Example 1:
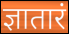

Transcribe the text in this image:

ज्ञातारं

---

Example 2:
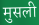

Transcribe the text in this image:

मुसली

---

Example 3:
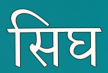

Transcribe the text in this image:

सिघ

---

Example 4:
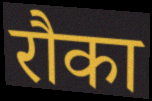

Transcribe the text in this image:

रौका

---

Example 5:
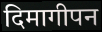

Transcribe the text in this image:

दिमागीपन